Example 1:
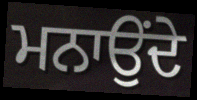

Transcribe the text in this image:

ਮਨਾਉਂਦੇ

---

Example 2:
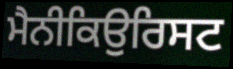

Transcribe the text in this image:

ਮੈਨੀਕਿਉਰਿਸਟ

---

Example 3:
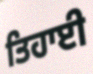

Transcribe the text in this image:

ਤਿਹਾਈ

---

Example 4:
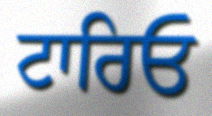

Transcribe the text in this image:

ਟਾਰਿਓ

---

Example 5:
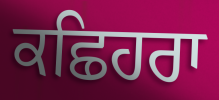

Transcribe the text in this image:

ਕਛਿਹਰਾ